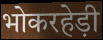
भोकरहेड़ी